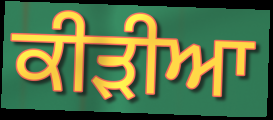
ਕੀੜੀਆ